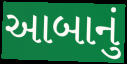
આબાનું